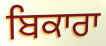
ਬਿਕਾਰਾ